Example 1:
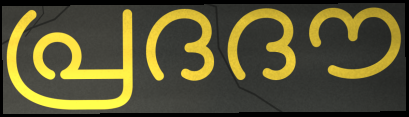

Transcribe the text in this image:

പ്രദദൗ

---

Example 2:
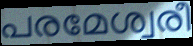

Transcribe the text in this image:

പരമേശ്വരീ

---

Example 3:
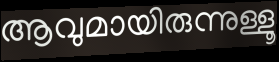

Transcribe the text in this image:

ആവുമായിരുന്നുള്ളൂ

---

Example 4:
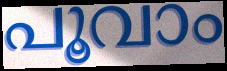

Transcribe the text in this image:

പൂവാം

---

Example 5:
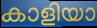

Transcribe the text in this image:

കാളിയാ